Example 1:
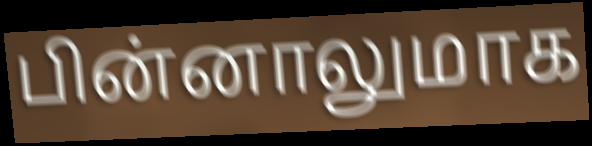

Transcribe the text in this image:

பின்னாலுமாக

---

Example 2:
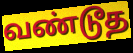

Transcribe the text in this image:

வண்டூத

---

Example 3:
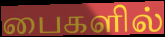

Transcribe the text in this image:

பைகளில்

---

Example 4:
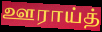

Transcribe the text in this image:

ஊராய்த்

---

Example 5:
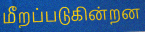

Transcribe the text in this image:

மீறப்படுகின்றன